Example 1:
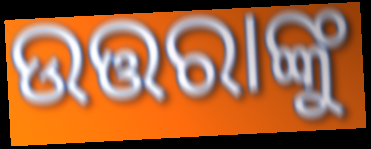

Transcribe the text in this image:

ଉତ୍ତରାଙ୍କୁ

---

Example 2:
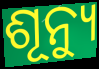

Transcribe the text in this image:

ଶୂନ୍ୟୁ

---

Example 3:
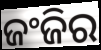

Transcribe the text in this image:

ଜଂଜିର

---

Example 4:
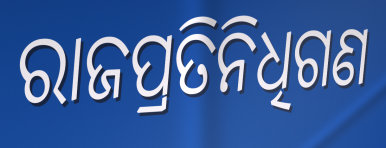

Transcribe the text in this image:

ରାଜପ୍ରତିନିଧିଗଣ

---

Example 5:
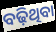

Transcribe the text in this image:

ବଢ଼ିଥିବା